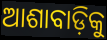
ଆଶାବାଡ଼ିକୁ